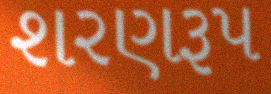
શરણરૂપ